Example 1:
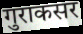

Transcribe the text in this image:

गुराकसर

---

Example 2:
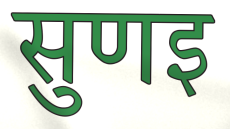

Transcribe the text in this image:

सुणइ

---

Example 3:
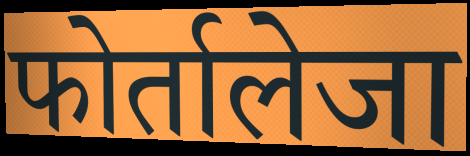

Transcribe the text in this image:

फोर्तालेजा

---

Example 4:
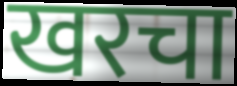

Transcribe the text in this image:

खरचा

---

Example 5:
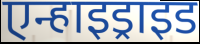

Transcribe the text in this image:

एन्हाइड्राइड